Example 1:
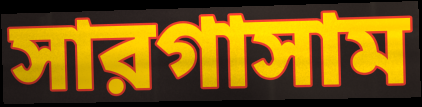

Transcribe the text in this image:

সারগাসাম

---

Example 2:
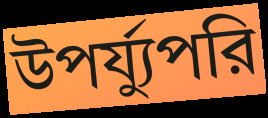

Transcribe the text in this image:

উপর্য্যুপরি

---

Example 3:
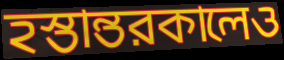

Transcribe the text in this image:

হস্তান্তরকালেও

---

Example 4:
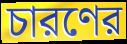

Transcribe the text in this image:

চারণের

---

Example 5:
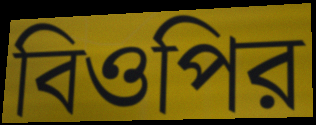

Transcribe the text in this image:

বিওপির